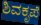
ಶಿವಕೃಪೆ